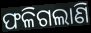
ଫଳିଗଲାଣି